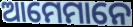
ଆମେମାନେ